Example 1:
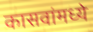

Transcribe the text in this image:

कासवांमध्ये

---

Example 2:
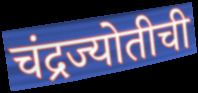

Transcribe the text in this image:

चंद्रज्योतीची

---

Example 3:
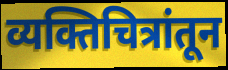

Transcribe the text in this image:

व्यक्तिचित्रांतून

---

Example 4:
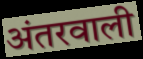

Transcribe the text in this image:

अंतरवाली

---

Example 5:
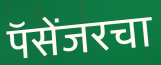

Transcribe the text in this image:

पॅसेंजरचा